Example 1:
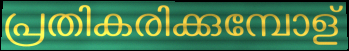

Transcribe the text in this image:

പ്രതികരിക്കുമ്പോള്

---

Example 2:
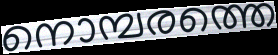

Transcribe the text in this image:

നൊമ്പരത്തെ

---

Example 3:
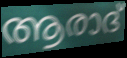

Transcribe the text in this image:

ആരാദ്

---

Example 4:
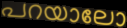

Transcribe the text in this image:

പറയാലോ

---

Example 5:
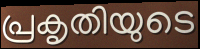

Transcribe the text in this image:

പ്രകൃതിയുടെ